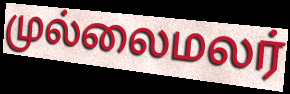
முல்லைமலர்